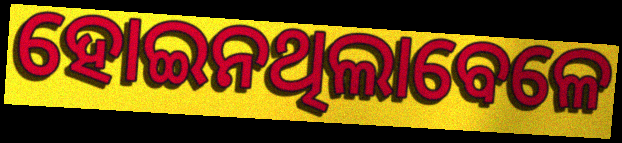
ହୋଇନଥିଲାବେଳେ